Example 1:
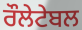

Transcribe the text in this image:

ਰੌਲੇਟੇਬਲ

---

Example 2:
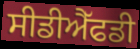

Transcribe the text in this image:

ਸੀਡੀਐੱਫਡੀ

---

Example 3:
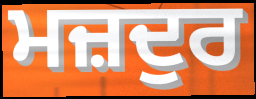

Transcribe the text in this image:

ਮਜ਼ਦੁਰ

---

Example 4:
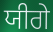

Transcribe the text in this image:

ਯੀਗੇ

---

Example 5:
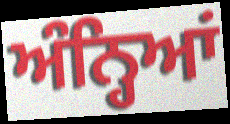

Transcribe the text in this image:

ਅੰਨ੍ਹਿਆਂ